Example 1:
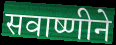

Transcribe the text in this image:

सवाष्णीने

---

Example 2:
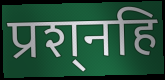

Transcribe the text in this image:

प्रश्नहि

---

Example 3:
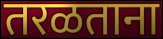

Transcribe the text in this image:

तरळताना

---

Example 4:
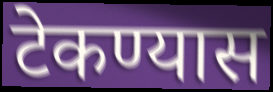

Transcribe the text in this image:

टेकण्यास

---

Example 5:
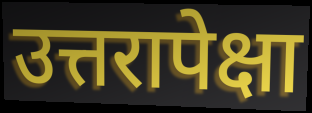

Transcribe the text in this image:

उत्तरापेक्षा